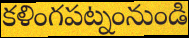
కళింగపట్నంనుండి